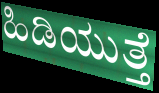
ಹಿಡಿಯುತ್ತೆ